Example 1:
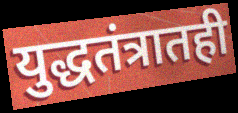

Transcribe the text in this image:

युद्धतंत्रातही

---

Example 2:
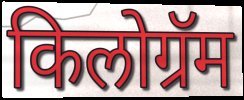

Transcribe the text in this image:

किलोग्रॅम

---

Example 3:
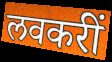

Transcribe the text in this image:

लवकरीं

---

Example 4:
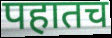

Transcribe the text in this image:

पहातच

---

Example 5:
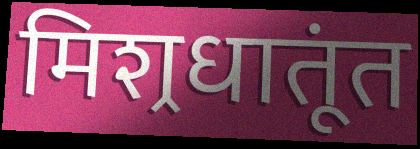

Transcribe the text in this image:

मिश्रधातूंत